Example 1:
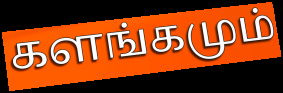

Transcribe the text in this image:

களங்கமும்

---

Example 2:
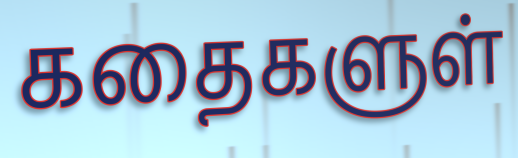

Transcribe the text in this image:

கதைகளுள்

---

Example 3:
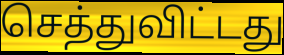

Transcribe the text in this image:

செத்துவிட்டது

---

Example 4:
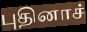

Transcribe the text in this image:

புதினாச்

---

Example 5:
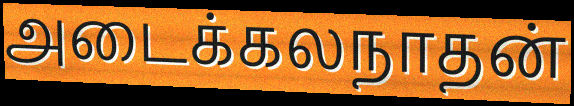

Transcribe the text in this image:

அடைக்கலநாதன்